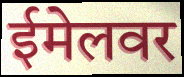
ईमेलवर